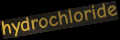
hydrochloride